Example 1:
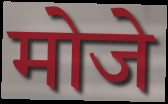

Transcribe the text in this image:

मोजे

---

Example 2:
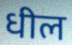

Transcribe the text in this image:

धील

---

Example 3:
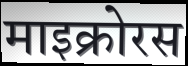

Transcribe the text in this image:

माइक्रोरस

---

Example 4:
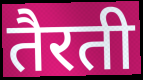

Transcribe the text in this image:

तैरती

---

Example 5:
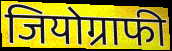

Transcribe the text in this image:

जियोग्राफी